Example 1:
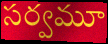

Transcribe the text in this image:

సర్వమూ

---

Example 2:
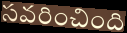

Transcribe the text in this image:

సవరించింది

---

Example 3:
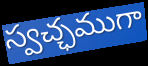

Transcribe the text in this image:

స్వచ్ఛముగా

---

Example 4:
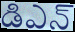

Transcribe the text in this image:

డిఎన్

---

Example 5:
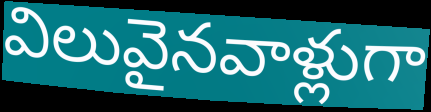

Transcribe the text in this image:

విలువైనవాళ్లుగా